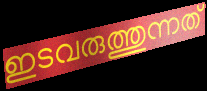
ഇടവരുത്തുന്നത്